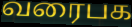
வரைபக